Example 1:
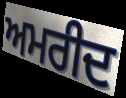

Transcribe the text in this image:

ਅਮਰੀਦ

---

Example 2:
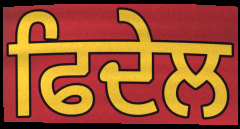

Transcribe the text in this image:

ਫਿਦੇਲ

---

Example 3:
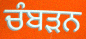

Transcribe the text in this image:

ਚੰਬੜਨ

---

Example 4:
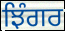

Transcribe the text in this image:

ਝਿੰਗਰ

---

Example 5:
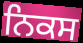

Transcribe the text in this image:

ਨਿਕਸ